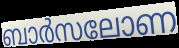
ബാർസലോണ